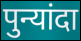
पुन्यांदा